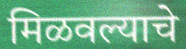
मिळवल्याचे